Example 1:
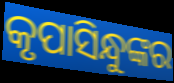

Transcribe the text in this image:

କୃପାସିନ୍ଧୁଙ୍କର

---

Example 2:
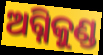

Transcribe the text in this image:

ଅଗ୍ନିକୁଣ୍ଡ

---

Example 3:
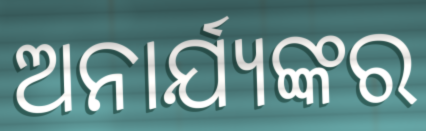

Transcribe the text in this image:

ଅନାର୍ଯ୍ୟଙ୍କର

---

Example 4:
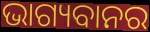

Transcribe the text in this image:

ଭାଗ୍ୟବାନର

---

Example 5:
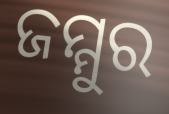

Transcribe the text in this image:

ଜମ୍ମୁର